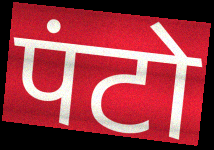
पंटो